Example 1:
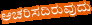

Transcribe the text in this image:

ಆಚರಿಸದಿರುವುದು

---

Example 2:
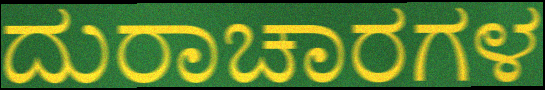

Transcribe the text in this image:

ದುರಾಚಾರಗಳ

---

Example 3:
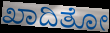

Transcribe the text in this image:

ಖಾದಿತೋ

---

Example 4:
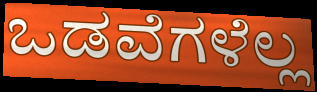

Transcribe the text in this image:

ಒಡವೆಗಳೆಲ್ಲ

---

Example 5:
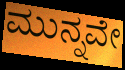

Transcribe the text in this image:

ಮುನ್ನವೇ